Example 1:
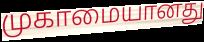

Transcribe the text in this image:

முகாமையானது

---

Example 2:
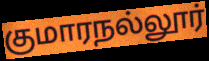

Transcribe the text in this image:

குமாரநல்லூர்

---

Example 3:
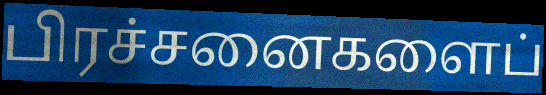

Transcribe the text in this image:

பிரச்சனைகளைப்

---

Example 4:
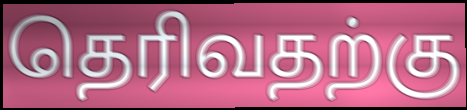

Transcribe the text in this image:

தெரிவதற்கு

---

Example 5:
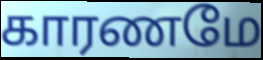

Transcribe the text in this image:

காரணமே